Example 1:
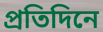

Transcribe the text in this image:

প্ৰতিদিনে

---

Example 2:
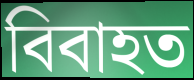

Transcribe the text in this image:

বিবাহত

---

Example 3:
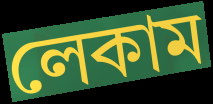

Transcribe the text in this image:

লেকাম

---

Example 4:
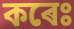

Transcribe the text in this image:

কৰেঃ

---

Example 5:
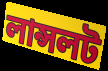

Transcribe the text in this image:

লান্সলট